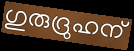
ഗുരുദ്രുഹന്